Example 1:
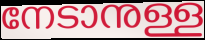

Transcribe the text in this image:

നേടാനുള്ള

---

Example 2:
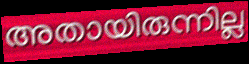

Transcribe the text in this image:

അതായിരുന്നില്ല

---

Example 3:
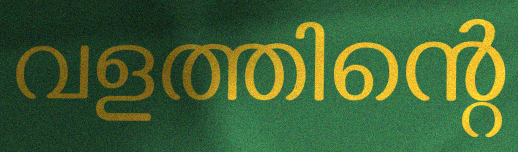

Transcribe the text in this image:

വളത്തിന്റെ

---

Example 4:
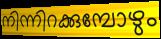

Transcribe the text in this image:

നിന്നിറക്കുമ്പോഴും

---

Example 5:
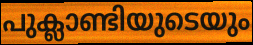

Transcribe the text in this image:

പുക്ലാണ്ടിയുടെയും